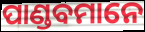
ପାଣ୍ଡବମାନେ